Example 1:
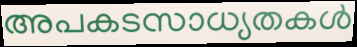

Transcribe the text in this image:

അപകടസാധ്യതകൾ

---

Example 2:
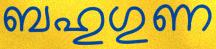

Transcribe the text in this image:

ബഹുഗുണ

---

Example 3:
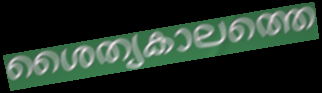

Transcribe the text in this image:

ശൈത്യകാലത്തെ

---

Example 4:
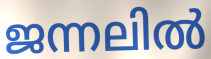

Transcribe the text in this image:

ജന്നലിൽ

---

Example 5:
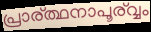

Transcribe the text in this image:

പ്രാര്ത്ഥനാപൂര്വ്വം